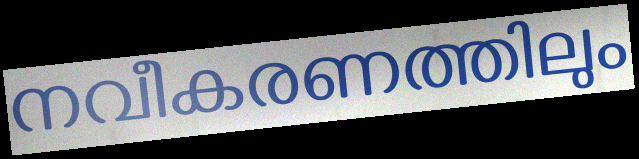
നവീകരണത്തിലും